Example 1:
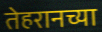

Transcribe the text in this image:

तेहरानच्या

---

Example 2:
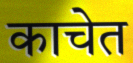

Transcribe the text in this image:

काचेत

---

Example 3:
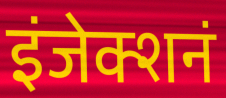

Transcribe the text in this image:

इंजेक्शनं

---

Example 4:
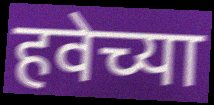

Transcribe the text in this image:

हवेच्या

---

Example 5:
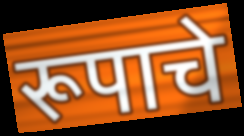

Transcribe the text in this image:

रूपाचे